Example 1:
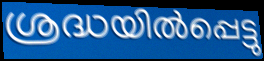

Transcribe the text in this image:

ശ്രദ്ധയിൽപ്പെട്ടു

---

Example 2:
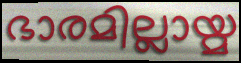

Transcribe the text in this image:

ഭാരമില്ലായ്മ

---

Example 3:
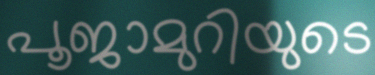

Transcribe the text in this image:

പൂജാമുറിയുടെ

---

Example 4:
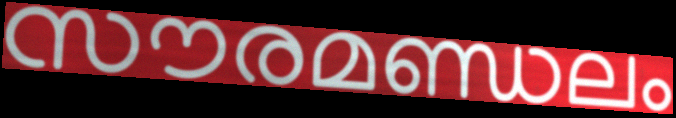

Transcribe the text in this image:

സൗരമണ്ഡലം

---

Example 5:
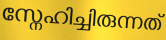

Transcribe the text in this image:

സ്നേഹിച്ചിരുന്നത്